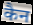
कैन